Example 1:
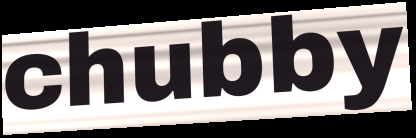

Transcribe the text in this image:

chubby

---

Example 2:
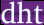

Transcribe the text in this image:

dht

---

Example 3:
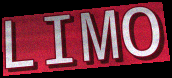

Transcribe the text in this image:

LIMO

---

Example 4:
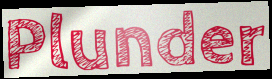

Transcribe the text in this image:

Plunder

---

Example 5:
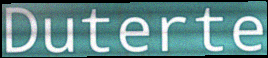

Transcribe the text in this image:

Duterte